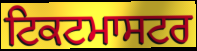
ਟਿਕਟਮਾਸਟਰ